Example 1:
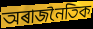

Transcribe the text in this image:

অৰাজনৈতিক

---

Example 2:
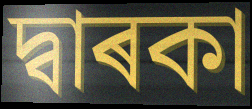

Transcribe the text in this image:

দ্বাৰকা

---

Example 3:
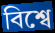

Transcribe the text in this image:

বিশ্বে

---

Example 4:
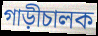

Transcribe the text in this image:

গাড়ীচালক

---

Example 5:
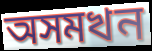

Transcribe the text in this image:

অসমখন